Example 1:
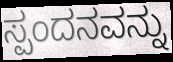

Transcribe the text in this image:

ಸ್ಪಂದನವನ್ನು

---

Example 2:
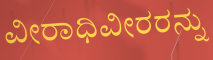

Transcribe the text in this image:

ವೀರಾಧಿವೀರರನ್ನು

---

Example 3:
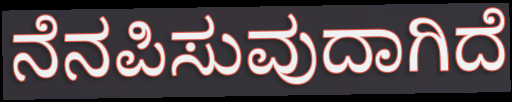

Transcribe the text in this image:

ನೆನಪಿಸುವುದಾಗಿದೆ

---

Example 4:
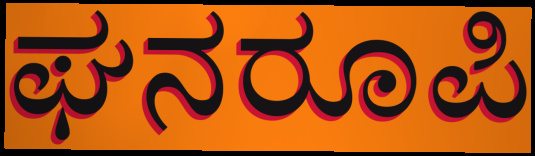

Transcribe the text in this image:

ಘನರೂಪಿ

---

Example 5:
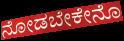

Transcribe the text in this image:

ನೋಡಬೇಕೇನೊ